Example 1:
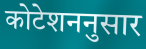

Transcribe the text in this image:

कोटेशननुसार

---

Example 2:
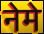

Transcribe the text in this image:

नेमे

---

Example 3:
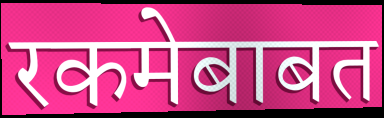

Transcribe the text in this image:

रकमेबाबत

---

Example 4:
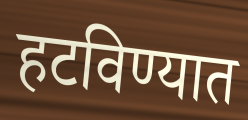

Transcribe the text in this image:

हटविण्यात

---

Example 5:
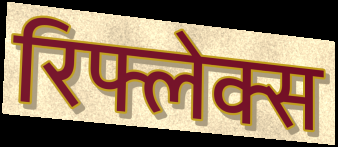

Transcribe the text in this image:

रिफ्लेक्स